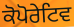
ਕੋਪੋਰੇਟਿਵ